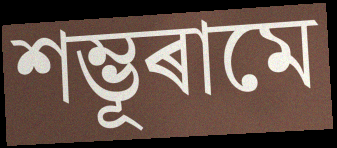
শম্ভূৰামে